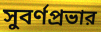
সুবর্ণপ্রভার